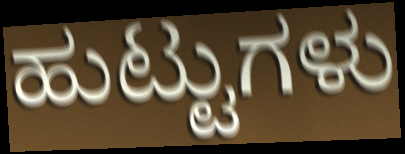
ಹುಟ್ಟುಗಳು